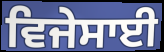
ਵਿਜੇਸਾਈ